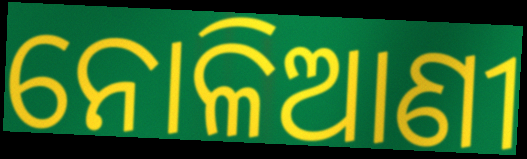
ନୋଳିଆଣୀ